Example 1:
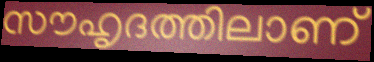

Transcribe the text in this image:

സൗഹൃദത്തിലാണ്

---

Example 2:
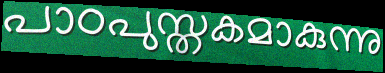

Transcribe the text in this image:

പാഠപുസ്തകമാകുന്നു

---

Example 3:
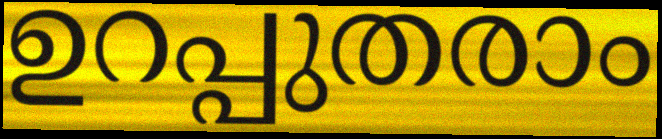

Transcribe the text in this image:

ഉറപ്പുതരാം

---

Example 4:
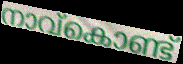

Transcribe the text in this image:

നാവ്കൊണ്ട്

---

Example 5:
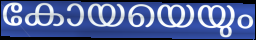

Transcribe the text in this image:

കോയയെയും